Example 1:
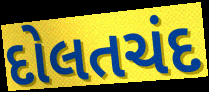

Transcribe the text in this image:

દોલતચંદ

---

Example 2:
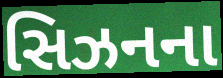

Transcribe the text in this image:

સિઝનના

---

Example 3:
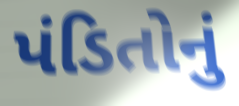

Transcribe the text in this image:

પંડિતોનું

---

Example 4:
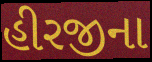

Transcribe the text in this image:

હીરજીના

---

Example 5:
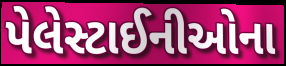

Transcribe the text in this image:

પેલેસ્ટાઈનીઓના